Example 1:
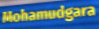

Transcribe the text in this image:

Mohamudgara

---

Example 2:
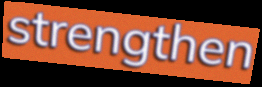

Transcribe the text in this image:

strengthen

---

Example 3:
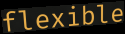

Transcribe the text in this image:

flexible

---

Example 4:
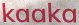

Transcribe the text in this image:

kaaka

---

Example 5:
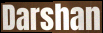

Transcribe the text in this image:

Darshan